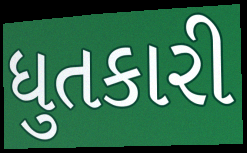
ધુતકારી